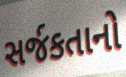
સર્જકતાનો